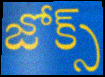
జోక్స్